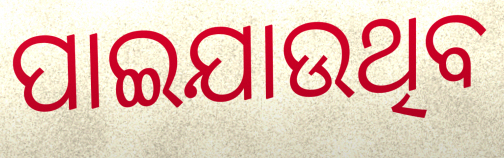
ପାଇଯାଉଥିବ